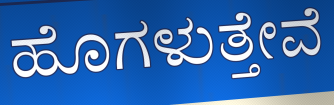
ಹೊಗಳುತ್ತೇವೆ